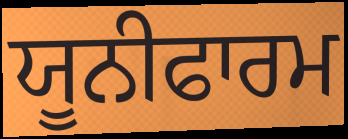
ਯੂਨੀਫਾਰਮ